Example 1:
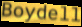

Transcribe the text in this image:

Boydell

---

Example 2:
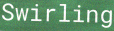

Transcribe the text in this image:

Swirling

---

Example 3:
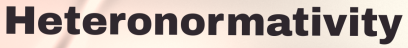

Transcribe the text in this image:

Heteronormativity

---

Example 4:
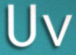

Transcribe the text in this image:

Uv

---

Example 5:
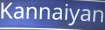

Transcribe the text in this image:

Kannaiyan